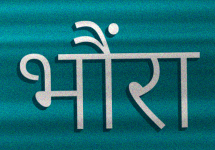
भौंरा